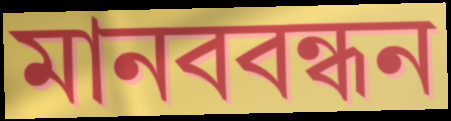
মানববন্ধন